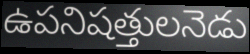
ఉపనిషత్తులనెడు